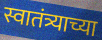
स्वातंत्र्याच्या